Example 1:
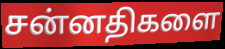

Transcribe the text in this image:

சன்னதிகளை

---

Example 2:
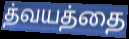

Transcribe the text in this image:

த்வயத்தை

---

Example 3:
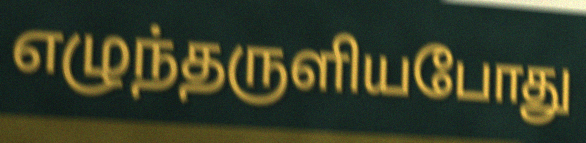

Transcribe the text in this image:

எழுந்தருளியபோது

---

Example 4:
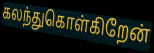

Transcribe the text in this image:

கலந்துகொள்கிறேன்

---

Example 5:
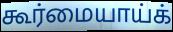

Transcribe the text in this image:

கூர்மையாய்க்